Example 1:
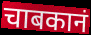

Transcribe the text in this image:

चाबकानं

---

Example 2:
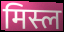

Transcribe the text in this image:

मिस्ल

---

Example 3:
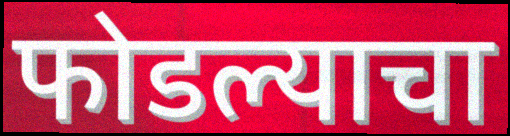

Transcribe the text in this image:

फोडल्याचा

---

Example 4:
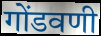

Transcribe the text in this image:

गोंडवणी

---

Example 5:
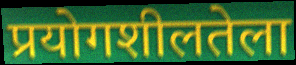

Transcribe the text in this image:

प्रयोगशीलतेला